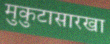
मुकुटासारखा